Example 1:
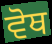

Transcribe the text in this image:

ਵੋਥ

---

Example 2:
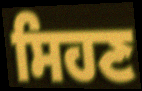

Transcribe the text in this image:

ਸਿਹਣ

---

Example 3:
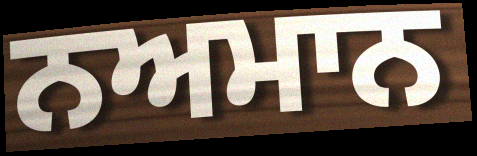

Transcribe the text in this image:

ਨਅਮਾਨ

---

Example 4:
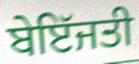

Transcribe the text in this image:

ਬੇਇੱਜਤੀ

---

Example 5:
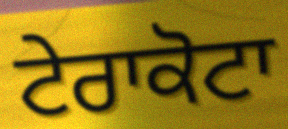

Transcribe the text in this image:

ਟੇਰਾਕੋਟਾ